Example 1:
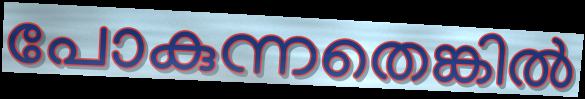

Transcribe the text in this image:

പോകുന്നതെങ്കിൽ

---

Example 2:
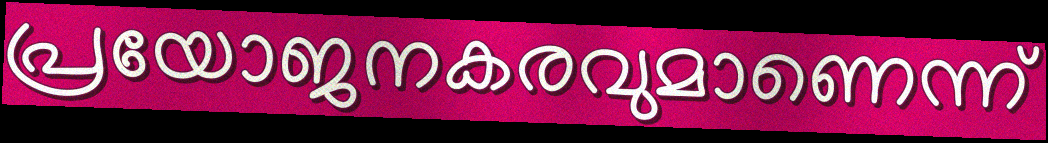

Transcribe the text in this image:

പ്രയോജനകരവുമാണെന്ന്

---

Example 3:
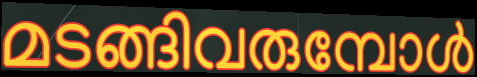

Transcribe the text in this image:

മടങ്ങിവരുമ്പോൾ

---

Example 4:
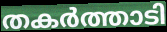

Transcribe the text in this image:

തകർത്താടി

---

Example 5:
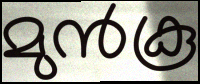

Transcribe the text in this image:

മുൻകൂ